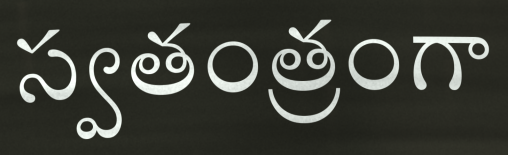
స్వతంత్రంగా